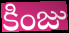
కింజు